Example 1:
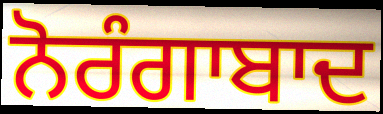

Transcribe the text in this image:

ਨੋਰੰਗਾਬਾਦ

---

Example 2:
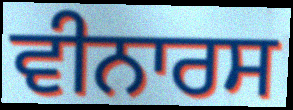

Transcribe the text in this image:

ਵੀਨਾਰਸ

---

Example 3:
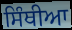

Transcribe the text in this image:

ਸਿੰਥੀਆ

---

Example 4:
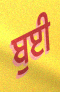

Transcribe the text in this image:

ਬੁਈ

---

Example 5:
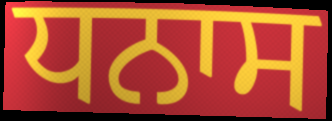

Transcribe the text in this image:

ਧਨਾਸ